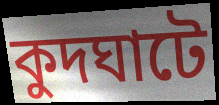
কুদঘাটে